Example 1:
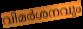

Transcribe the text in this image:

വിമർശനവും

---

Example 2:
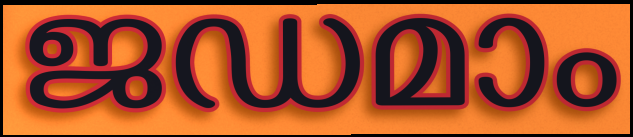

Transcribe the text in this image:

ജഡമാം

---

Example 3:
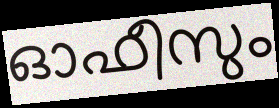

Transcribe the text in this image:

ഓഫീസും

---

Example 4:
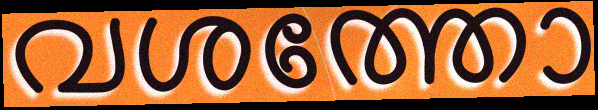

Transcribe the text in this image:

വശത്തോ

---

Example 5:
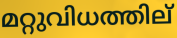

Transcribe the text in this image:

മറ്റുവിധത്തില്